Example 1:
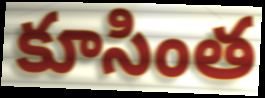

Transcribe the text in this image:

కూసింత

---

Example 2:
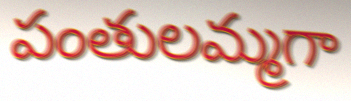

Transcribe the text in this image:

పంతులమ్మగా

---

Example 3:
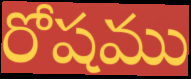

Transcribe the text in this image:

రోషము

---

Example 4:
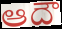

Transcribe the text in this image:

ఆదౌ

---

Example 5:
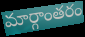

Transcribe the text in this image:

మార్గాంతరం